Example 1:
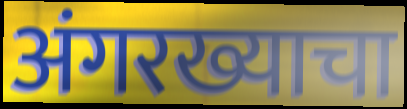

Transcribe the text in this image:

अंगरख्याचा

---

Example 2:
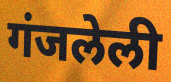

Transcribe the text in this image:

गंजलेली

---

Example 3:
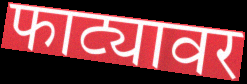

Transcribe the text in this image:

फाट्यावर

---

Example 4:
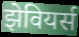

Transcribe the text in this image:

झेवियर्स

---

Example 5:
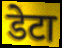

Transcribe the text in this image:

डेटा